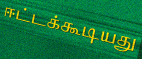
ஈட்டக்கூடியது